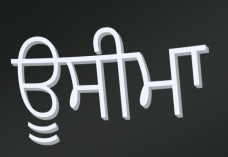
ਊਸੀਮਾ